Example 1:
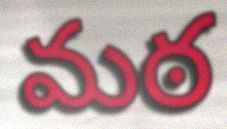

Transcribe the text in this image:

మఠ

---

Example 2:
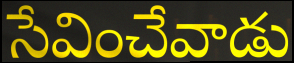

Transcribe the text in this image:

సేవించేవాడు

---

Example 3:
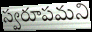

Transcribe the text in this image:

స్వరూపమని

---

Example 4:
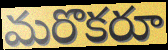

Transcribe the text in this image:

మరొకరూ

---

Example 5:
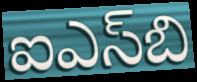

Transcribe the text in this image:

ఐఎస్‌బి